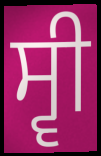
ਸ੍ਵੀ